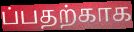
ப்பதற்காக